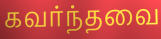
கவர்ந்தவை